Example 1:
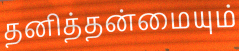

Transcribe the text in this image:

தனித்தன்மையும்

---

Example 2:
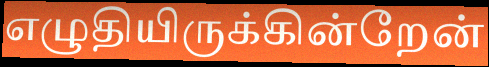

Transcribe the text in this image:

எழுதியிருக்கின்றேன்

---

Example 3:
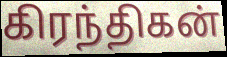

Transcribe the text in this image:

கிரந்திகன்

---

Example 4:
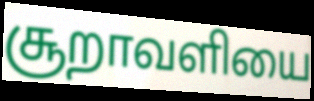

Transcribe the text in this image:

சூறாவளியை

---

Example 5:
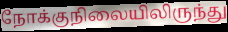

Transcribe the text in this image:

நோக்குநிலையிலிருந்து